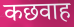
कछवाह